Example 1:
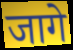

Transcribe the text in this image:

जागे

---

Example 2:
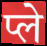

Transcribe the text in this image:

प्ले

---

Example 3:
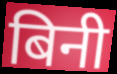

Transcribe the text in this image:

बिनी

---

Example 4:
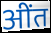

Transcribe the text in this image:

अींत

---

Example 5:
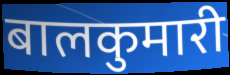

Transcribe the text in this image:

बालकुमारी